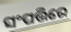
ସଂପତ୍ତିରେ